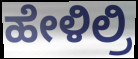
ಹೇಳಿಲ್ರಿ